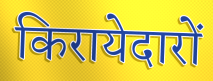
किरायेदारों